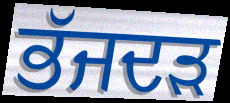
ਭੱਜਦੜ